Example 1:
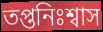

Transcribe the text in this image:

তপ্তনিঃশ্বাস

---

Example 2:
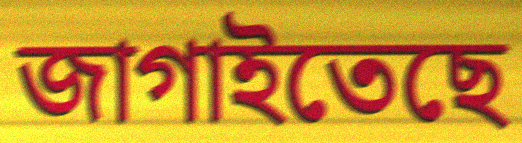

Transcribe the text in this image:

জাগাইতেছে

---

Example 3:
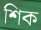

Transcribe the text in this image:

শিক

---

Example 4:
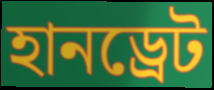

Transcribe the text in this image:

হানড্রেট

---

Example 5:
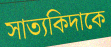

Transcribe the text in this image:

সাত্যকিদাকে